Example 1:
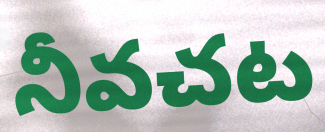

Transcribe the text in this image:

నీవచట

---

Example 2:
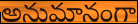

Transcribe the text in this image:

అనుమానంగా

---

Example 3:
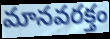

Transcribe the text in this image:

మానవరక్తం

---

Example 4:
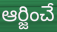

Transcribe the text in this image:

ఆర్జించే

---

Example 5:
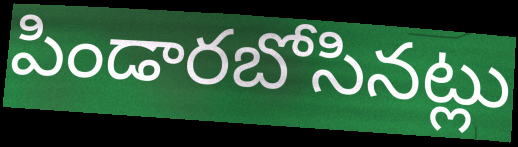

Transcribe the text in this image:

పిండారబోసినట్లు